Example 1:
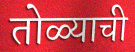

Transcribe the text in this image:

तोळ्याची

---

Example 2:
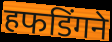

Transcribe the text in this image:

हफडिंगने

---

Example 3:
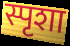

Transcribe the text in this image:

स्पृशा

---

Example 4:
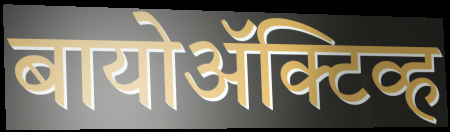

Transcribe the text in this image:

बायोॲक्टिव्ह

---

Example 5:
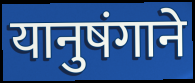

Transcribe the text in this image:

यानुषंगाने